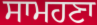
ਸਾਮਹਣਾ